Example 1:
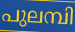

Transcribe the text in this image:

പുലമ്പി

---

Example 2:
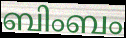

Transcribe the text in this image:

ബിംബം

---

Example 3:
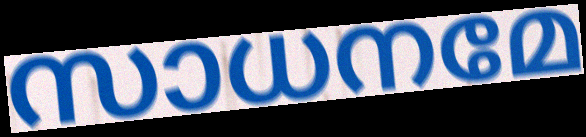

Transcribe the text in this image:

സാധനമേ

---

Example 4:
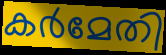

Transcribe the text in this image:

കർമേതി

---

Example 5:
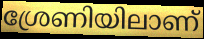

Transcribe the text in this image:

ശ്രേണിയിലാണ്